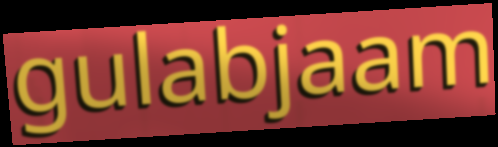
gulabjaam